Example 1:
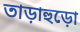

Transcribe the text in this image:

তাড়াহুড়ো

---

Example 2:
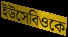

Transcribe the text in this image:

ইউসেবিওকে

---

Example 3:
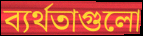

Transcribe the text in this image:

ব্যর্থতাগুলো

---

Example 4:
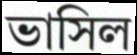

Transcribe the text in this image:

ভাসিল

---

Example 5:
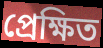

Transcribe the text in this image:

প্রেক্ষিত